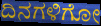
ದಿನಗಳಿಗೋ